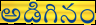
అడిగినం